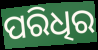
ପରିଧିର